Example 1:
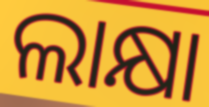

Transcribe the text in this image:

ଲାକ୍ଷା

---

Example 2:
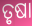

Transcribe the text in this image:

ତୃଷା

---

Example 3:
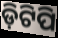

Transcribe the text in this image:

ଡ଼ିଟିପି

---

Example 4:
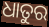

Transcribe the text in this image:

ଧାତୁର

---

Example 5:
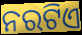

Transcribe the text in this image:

ନରଟିଏ